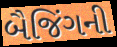
બૈજિંગની